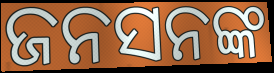
ଜନସନଙ୍କ